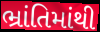
ભ્રાંતિમાંથી